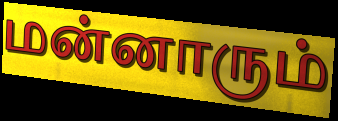
மன்னாரும்